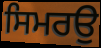
ਸਿਮਰਉ